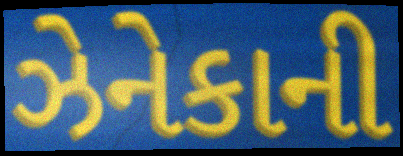
ઝેનેકાની